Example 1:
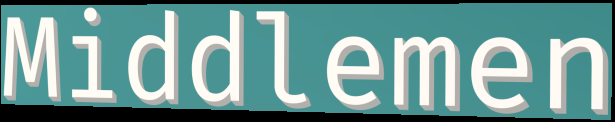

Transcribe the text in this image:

Middlemen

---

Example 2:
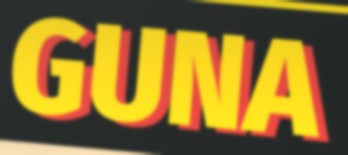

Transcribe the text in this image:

GUNA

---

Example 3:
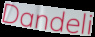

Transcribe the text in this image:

Dandeli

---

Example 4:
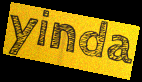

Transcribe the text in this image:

yinda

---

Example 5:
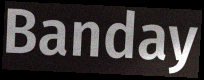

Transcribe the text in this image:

Banday